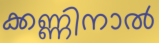
ക്കണ്ണിനാൽ